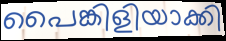
പൈങ്കിളിയാക്കി